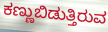
ಕಣ್ಣುಬಿಡುತ್ತಿರುವ